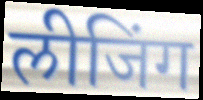
लीजिंग